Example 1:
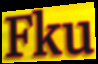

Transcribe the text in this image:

Fku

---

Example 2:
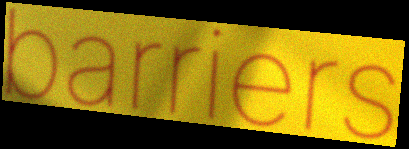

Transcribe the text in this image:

barriers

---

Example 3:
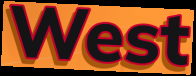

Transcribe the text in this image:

West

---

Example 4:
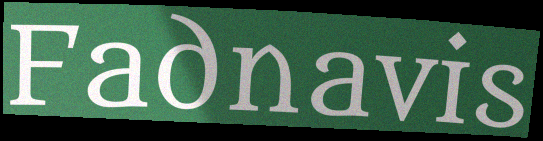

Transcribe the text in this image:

Fadnavis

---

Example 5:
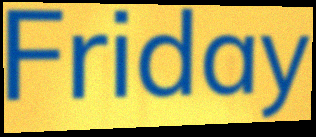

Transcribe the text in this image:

Friday